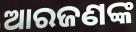
ଆରଜଣଙ୍କ